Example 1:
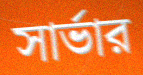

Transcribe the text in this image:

সার্ভার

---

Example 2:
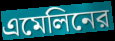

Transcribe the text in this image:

এমেলিনের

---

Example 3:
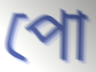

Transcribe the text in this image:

পো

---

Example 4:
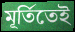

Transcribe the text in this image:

মূর্তিতেই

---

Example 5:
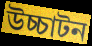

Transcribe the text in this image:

উচ্চাটন